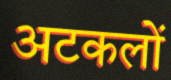
अटकलों